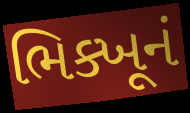
ભિક્ખૂનં